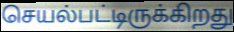
செயல்பட்டிருக்கிறது